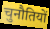
चुनौतियों